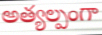
అత్యల్పంగా